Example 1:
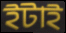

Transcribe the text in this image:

ইটাই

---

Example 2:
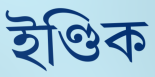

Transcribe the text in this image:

ইণ্ডিক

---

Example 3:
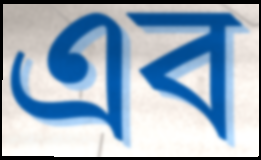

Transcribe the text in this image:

এব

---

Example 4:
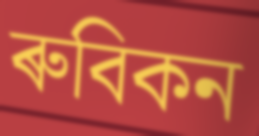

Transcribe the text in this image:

ৰুবিকন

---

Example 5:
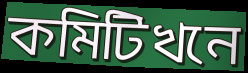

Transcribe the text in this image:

কমিটিখনে